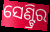
ସେଣ୍ଟ୍ରିର